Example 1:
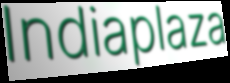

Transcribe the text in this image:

Indiaplaza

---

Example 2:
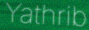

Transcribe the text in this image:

Yathrib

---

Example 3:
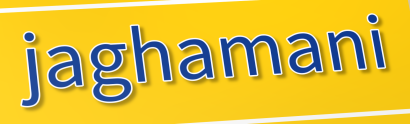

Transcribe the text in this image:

jaghamani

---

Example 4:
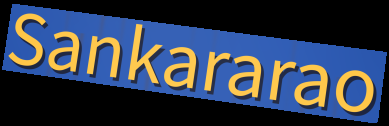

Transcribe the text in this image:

Sankararao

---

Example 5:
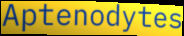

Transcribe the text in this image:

Aptenodytes